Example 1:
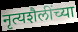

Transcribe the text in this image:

नृत्यशैलींच्या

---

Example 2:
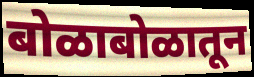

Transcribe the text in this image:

बोळाबोळातून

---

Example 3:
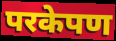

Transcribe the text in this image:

परकेपण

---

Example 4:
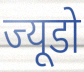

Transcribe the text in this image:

ज्यूडो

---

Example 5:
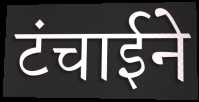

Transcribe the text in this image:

टंचाईने